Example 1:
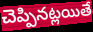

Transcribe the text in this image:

చెప్పినట్లయితే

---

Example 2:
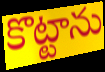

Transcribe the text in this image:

కొట్టాను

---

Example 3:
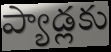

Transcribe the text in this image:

ప్యాడ్లకు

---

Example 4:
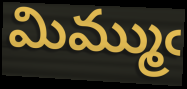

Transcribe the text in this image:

మిమ్ముఁ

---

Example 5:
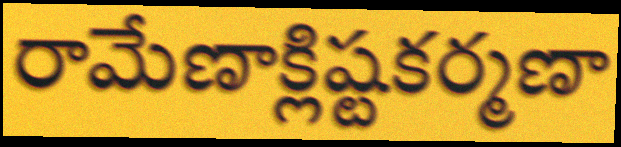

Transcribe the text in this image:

రామేణాక్లిష్టకర్మణా